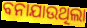
ବନାଯାଉଥିଲା